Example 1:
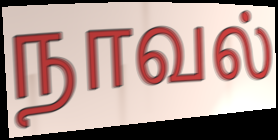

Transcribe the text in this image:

நாவல்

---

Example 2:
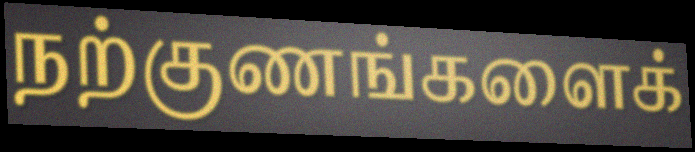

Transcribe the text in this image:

நற்குணங்களைக்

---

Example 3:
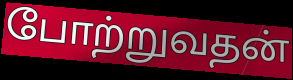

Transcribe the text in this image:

போற்றுவதன்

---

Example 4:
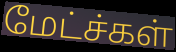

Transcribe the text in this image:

மேட்ச்கள்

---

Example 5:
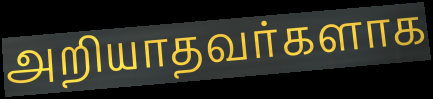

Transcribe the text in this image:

அறியாதவர்களாக